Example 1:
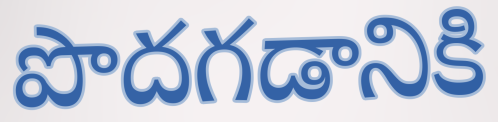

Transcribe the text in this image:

పొదగడానికి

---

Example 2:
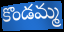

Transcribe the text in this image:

కొండమ్మ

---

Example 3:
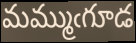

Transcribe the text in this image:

మమ్ముఁగూడ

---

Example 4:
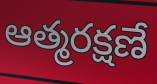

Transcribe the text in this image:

ఆత్మరక్షణే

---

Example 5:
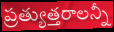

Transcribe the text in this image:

ప్రత్యుత్తరాలన్నీ